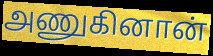
அணுகினான்